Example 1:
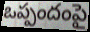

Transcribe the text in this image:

ఒప్పందంపై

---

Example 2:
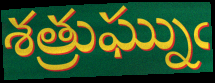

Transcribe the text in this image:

శత్రుఘ్నుఁ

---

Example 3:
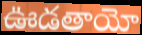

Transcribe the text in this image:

ఊడతాయో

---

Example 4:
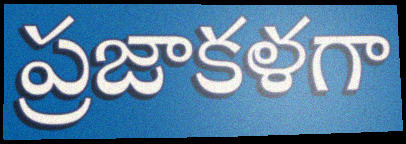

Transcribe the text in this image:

ప్రజాకళగా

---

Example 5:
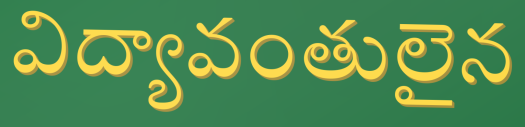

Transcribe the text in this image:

విద్యావంతులైన